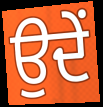
ਉਦੇਂ